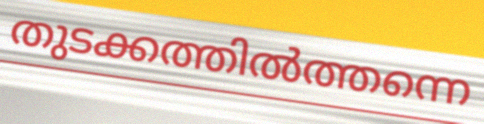
തുടക്കത്തിൽത്തന്നെ